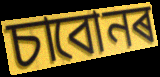
চাবোনৰ